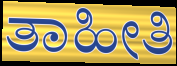
ತಾಹೀತಿ